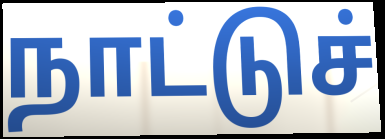
நாட்டுச்